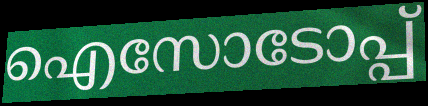
ഐസോടോപ്പ്